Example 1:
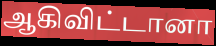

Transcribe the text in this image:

ஆகிவிட்டானா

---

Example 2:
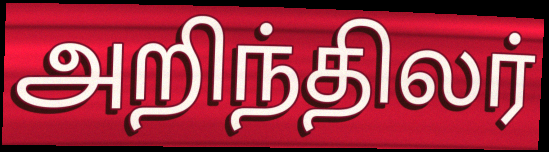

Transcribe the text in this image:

அறிந்திலர்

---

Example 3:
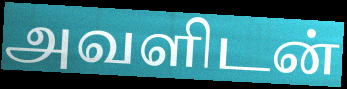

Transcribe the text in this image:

அவளிடன்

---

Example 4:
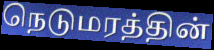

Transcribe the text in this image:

நெடுமரத்தின்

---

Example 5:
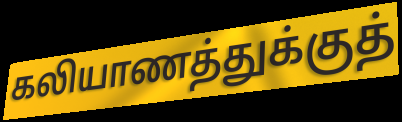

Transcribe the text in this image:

கலியாணத்துக்குத்